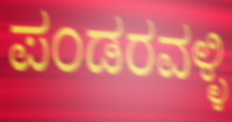
ಪಂಡರವಳ್ಳಿ